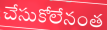
చేసుకోలేనంత